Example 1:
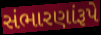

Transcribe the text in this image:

સંભારણાંરૂપે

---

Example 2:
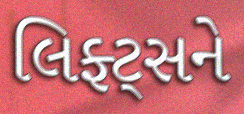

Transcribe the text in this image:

લિફ્ટ્સને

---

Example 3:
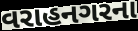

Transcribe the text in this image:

વરાહનગરના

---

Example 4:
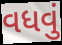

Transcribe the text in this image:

વધવું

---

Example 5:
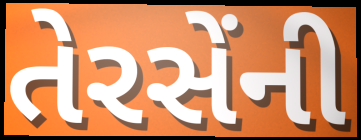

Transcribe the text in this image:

તેરસેંની